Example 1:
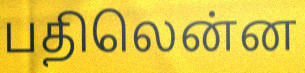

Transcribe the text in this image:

பதிலென்ன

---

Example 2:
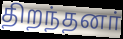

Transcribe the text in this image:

திறந்தனர்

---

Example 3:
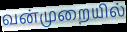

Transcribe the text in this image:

வன்முறையில்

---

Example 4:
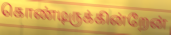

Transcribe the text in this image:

கொண்டிருக்கின்றேன்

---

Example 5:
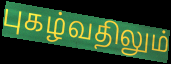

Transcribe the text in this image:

புகழ்வதிலும்